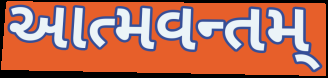
આત્મવન્તમ્